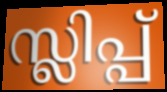
സ്ലിപ്പ്